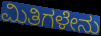
ಮಿತಿಗಳೇನು